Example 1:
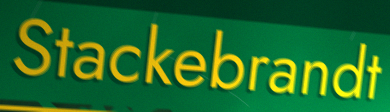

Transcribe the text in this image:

Stackebrandt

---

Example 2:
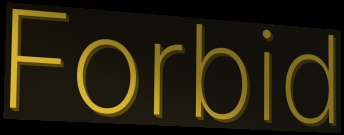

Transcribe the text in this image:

Forbid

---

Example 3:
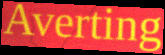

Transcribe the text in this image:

Averting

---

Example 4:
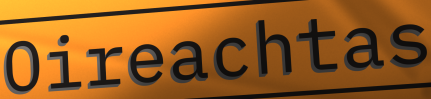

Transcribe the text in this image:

Oireachtas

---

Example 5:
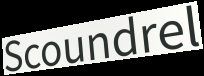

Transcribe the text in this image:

Scoundrel